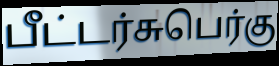
பீட்டர்சுபெர்கு